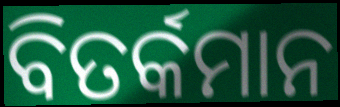
ବିତର୍କମାନ